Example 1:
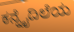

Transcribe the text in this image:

ಕನ್ನೈದಿಲೆಯ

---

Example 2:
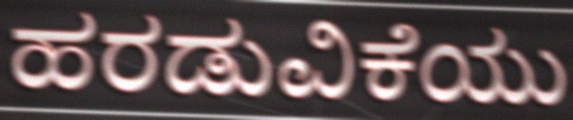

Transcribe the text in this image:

ಹರಡುವಿಕೆಯು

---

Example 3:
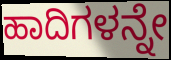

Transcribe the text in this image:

ಹಾದಿಗಳನ್ನೇ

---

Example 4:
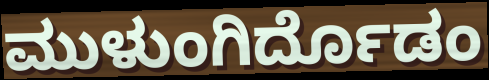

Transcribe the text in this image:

ಮುಳುಂಗಿರ್ದೊಡಂ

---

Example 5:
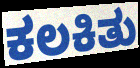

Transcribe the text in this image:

ಕಲಕಿತು